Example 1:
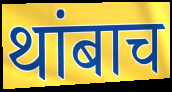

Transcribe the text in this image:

थांबाच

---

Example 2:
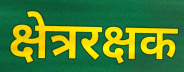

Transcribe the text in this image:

क्षेत्ररक्षक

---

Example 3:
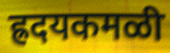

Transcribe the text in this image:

ह्रदयकमळी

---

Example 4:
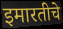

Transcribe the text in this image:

इमारतीचे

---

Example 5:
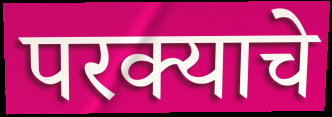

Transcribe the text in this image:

परक्याचे